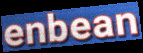
enbean